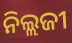
ନିଲ୍ଲଜୀ